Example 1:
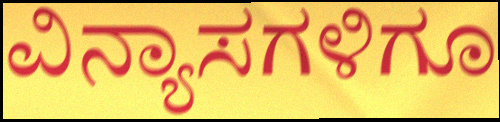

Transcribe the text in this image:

ವಿನ್ಯಾಸಗಳಿಗೂ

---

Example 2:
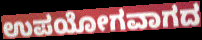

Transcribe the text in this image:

ಉಪಯೋಗವಾಗದ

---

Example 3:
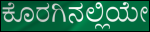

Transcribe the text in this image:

ಕೊರಗಿನಲ್ಲಿಯೇ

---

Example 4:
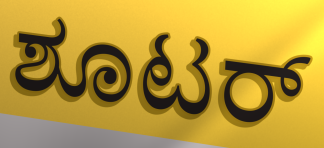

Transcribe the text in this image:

ಶೂಟರ್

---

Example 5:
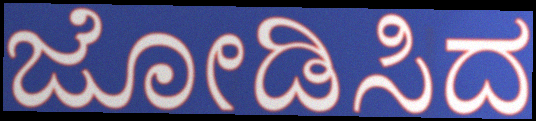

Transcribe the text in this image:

ಜೋಡಿಸಿದ